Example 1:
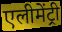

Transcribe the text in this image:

एलीमेंट्री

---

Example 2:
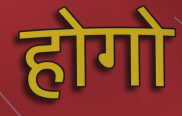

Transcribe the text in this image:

होगो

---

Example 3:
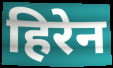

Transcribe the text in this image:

हिरेन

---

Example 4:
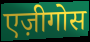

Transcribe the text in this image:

एज़ीगोस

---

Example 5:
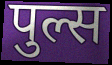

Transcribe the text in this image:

पुल्स